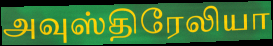
அவுஸ்திரேலியா